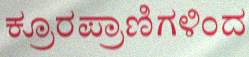
ಕ್ರೂರಪ್ರಾಣಿಗಳಿಂದ